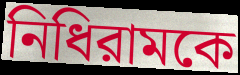
নিধিরামকে